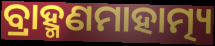
ବ୍ରାହ୍ମଣମାହାତ୍ମ୍ୟ